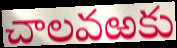
చాలవఱకు